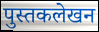
पुस्तकलेखन